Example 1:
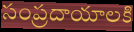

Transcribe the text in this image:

సంప్రదాయాలకి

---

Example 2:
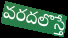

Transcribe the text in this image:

వరదలొస్తే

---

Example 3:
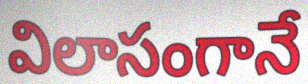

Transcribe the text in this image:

విలాసంగానే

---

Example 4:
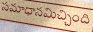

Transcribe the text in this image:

సమాధానమిచ్చింది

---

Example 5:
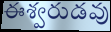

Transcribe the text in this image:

ఈశ్వరుడవు